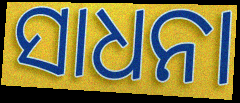
ସାଧନା